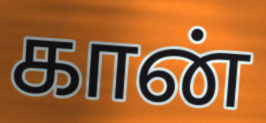
கான்